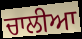
ਚਾਲੀਆ